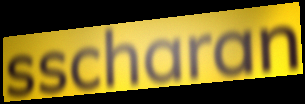
sscharan